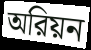
অরিয়ন